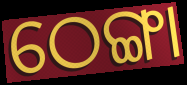
ଠେଙ୍ଗା